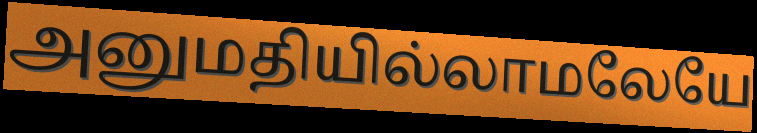
அனுமதியில்லாமலேயே